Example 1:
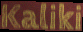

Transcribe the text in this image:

Kaliki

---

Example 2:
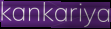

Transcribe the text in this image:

kankariya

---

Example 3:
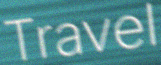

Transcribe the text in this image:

Travel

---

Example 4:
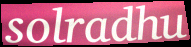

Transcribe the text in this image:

solradhu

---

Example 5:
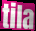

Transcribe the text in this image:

tila